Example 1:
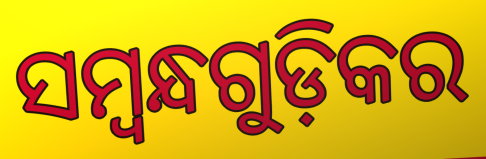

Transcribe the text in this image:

ସମ୍ବନ୍ଧଗୁଡ଼ିକର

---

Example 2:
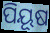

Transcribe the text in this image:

ପିୟୂଷ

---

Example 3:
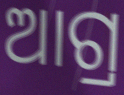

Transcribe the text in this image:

ଆଗ୍ର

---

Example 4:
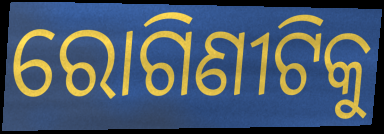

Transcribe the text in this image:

ରୋଗିଣୀଟିକୁ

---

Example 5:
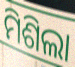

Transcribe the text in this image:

ମିଶିଲା